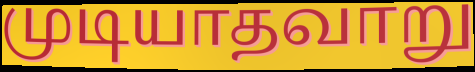
முடியாதவாறு